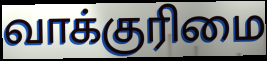
வாக்குரிமை